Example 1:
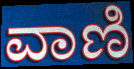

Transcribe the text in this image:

ವಾಣಿ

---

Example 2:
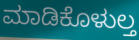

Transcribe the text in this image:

ಮಾಡಿಕೊಳುಲ್ತ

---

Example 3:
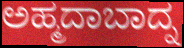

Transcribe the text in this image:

ಅಹ್ಮದಾಬಾದ್ನ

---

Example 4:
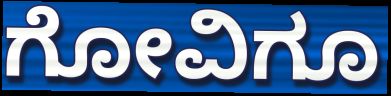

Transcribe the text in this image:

ಗೋವಿಗೂ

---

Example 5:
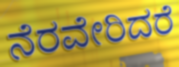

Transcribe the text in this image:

ನೆರವೇರಿದರೆ